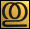
തു